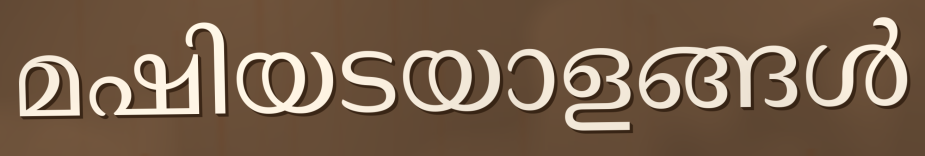
മഷിയടയാളങ്ങൾ